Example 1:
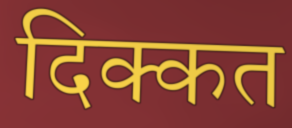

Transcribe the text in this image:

दिक्कत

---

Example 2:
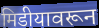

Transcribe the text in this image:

मिडीयावरून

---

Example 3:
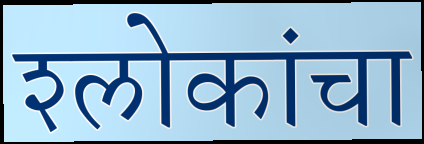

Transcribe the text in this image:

श्लोकांचा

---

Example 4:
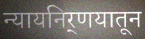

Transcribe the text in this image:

न्यायनिर्णयातून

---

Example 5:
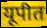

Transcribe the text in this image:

यूपीत